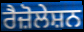
ਰੈਜ਼ੋਲੇਸ਼ਨ